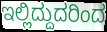
ಇಲ್ಲಿದ್ದುದರಿಂದ